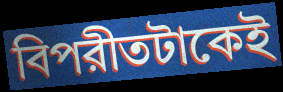
বিপরীতটাকেই